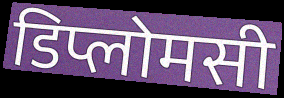
डिप्लोमसी